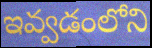
ఇవ్వడంలోని